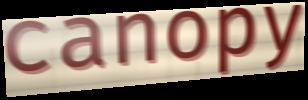
canopy